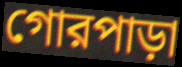
গোরপাড়া